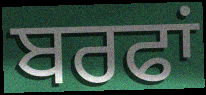
ਬਰਫਾਂ